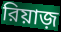
রিয়াজ়